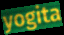
yogita